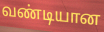
வண்டியான